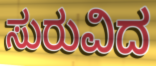
ಸುರುವಿದ